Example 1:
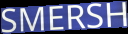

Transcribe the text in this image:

SMERSH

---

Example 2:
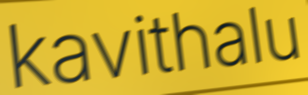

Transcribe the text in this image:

kavithalu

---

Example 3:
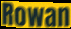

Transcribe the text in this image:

Rowan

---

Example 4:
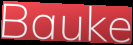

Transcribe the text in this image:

Bauke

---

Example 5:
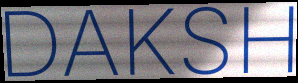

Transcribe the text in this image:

DAKSH